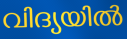
വിദ്യയിൽ